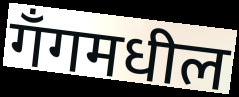
गँगमधील